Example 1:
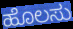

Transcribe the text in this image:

ಹೊಲಸು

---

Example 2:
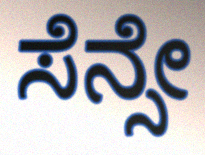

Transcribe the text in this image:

ಸೆನ್ಸೇ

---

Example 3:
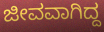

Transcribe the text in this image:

ಜೀವವಾಗಿದ್ದ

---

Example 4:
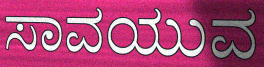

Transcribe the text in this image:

ಸಾವಯುವ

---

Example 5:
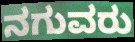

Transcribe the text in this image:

ನಗುವರು